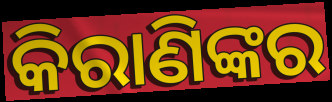
କିରାଣିଙ୍କର